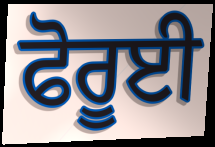
ਫੋਰੂਈ